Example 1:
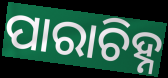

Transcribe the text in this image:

ପାରାଚିହ୍ନ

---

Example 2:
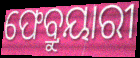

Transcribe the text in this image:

ଫେବ୍ରୁୟାରୀ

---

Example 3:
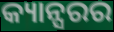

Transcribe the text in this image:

କ୍ୟାନ୍ସରର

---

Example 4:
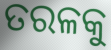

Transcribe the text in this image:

ତରଳକୁ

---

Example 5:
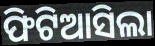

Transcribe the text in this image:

ଫିଟିଆସିଲା